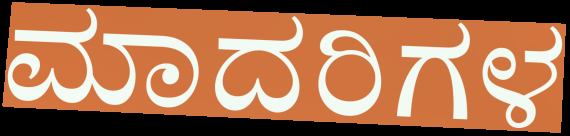
ಮಾದರಿಗಳ